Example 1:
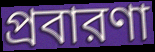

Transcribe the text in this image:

প্রবারণা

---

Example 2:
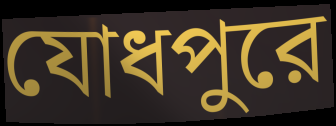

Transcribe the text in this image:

যোধপুরে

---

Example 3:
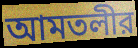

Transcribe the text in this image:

আমতলীর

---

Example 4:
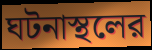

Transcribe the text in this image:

ঘটনাস্থলের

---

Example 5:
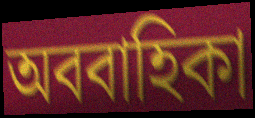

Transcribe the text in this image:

অববাহিকা